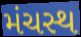
મંચસ્થ